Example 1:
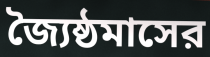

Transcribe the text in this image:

জ্যৈষ্ঠমাসের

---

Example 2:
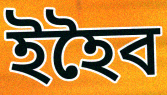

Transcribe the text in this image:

ইহৈব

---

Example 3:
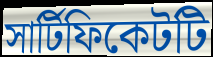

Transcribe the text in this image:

সার্টিফিকেটটি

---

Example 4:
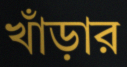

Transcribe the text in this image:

খাঁড়ার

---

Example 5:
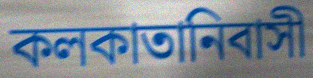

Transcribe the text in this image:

কলকাতানিবাসী